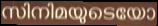
സിനിമയുടെയോ